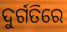
ଦୁର୍ଗତିରେ